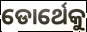
ଡୋର୍ଥେକୁ